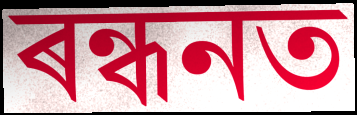
ৰন্ধনত